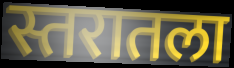
स्तरातला